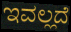
ಇವಲ್ಲದೆ